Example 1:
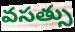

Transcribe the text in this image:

వసత్సు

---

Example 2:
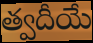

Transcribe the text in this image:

త్వదీయే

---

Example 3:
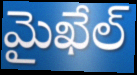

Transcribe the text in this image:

మైఖేల్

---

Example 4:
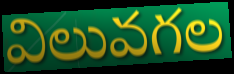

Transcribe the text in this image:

విలువగల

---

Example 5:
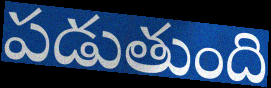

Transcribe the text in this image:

పడుతుంది